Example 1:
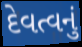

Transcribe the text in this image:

દેવત્વનું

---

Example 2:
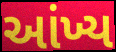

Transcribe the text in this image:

આંખ્ય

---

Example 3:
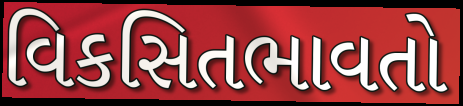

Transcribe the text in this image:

વિકસિતભાવતો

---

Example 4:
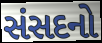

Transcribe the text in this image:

સંસદનો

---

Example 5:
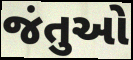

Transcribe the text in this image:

જંતુઓ